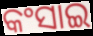
କଂସାଇ